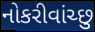
નોકરીવાંચ્છુ